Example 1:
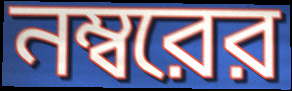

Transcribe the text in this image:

নম্বরের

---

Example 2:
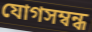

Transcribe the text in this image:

যোগসম্বন্ধ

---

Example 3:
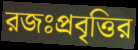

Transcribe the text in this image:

রজঃপ্রবৃত্তির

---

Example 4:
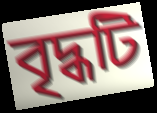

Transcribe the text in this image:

বৃদ্ধটি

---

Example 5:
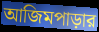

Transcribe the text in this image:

আজিমপাড়ার